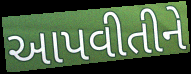
આપવીતીને